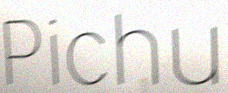
Pichu